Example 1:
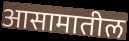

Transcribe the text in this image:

आसामातील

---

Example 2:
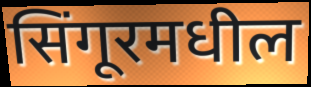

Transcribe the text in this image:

सिंगूरमधील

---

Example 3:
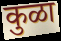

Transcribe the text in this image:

कुळा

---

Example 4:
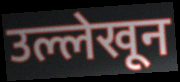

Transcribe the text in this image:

उल्लेखून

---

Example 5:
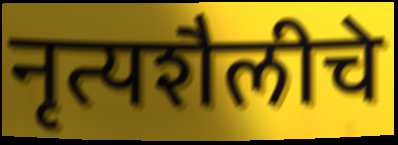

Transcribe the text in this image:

नृत्यशैलीचे